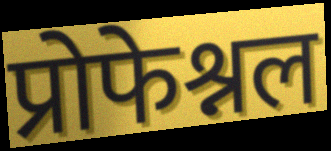
प्रोफेश्नल